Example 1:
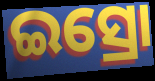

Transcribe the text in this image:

ଇସ୍ରୋ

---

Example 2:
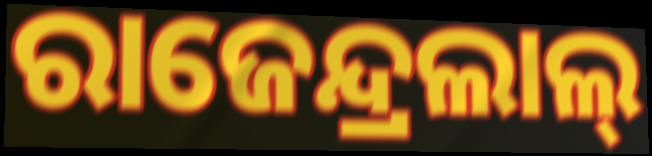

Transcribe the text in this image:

ରାଜେନ୍ଦ୍ରଲାଲ୍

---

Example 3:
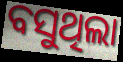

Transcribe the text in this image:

ବସୁଥିଲା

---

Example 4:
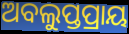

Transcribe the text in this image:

ଅବଲୁପ୍ତପ୍ରାୟ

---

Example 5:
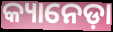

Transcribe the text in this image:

କ୍ୟାନେଡ଼ା